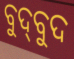
ବୁଦ୍‌ବୁଦ